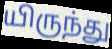
யிருந்து